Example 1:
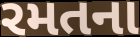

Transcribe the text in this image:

રમતના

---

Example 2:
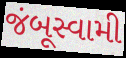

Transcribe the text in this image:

જંબૂસ્વામી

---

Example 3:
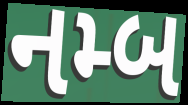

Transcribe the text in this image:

નમ્બ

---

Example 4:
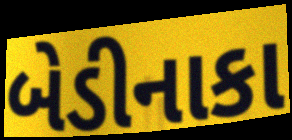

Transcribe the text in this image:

બેડીનાકા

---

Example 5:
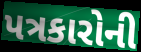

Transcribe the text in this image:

પત્રકારોની